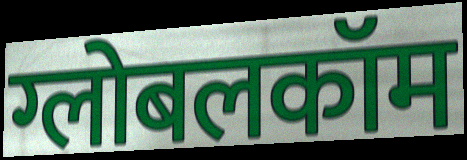
ग्लोबलकॉम